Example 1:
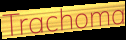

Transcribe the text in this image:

Trachoma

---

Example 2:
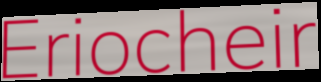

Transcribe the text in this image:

Eriocheir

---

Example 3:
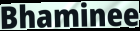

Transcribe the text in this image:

Bhaminee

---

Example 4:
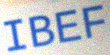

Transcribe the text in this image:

IBEF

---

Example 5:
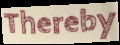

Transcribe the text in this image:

Thereby